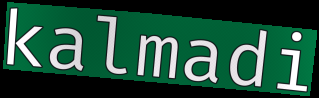
kalmadi